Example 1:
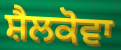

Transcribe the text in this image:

ਸ਼ੈਲਕੋਵਾ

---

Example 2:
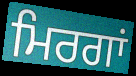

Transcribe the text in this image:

ਮਿਰਗਾਂ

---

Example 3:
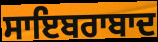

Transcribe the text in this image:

ਸਾਇਬਰਾਬਾਦ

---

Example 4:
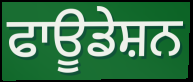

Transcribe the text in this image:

ਫਾਊਡੇਸ਼ਨ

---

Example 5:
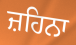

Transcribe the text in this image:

ਜ਼ਹਿਨਾ